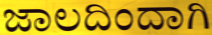
ಜಾಲದಿಂದಾಗಿ